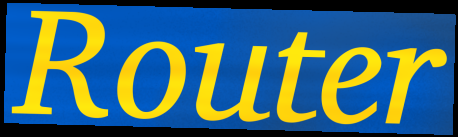
Router